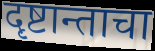
दृष्टान्ताचा